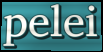
pelei